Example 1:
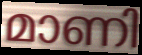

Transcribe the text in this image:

മാണി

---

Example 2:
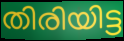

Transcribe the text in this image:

തിരിയിട്ട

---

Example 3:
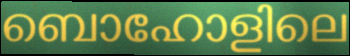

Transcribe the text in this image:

ബൊഹോളിലെ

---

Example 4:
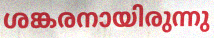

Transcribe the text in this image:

ശങ്കരനായിരുന്നു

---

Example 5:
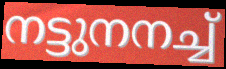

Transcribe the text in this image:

നട്ടുനനച്ച്